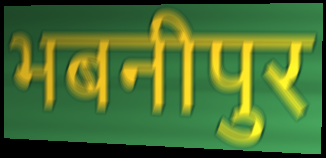
भबनीपुर